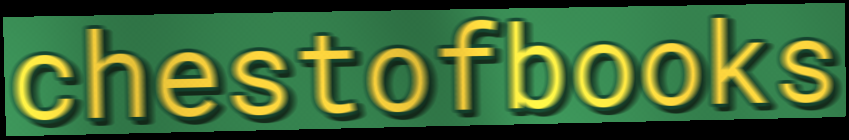
chestofbooks